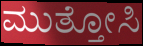
ಮುತ್ತೋಸಿ